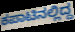
ಕಪಾಟಿನಲ್ಲಿದ್ದ